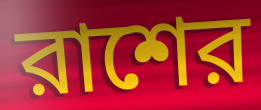
রাশের